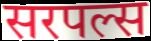
सरपल्स